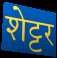
शेट्टर